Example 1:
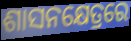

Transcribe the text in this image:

ଶାସନକ୍ଷେତ୍ରରେ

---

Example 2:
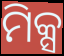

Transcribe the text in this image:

ମିକ୍ସ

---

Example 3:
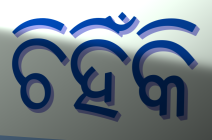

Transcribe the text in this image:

ଚିହିଁକି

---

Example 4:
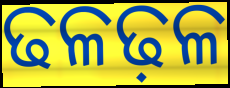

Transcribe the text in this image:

ଢଳଢ଼ଳ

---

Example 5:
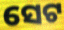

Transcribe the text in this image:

ସେଟ